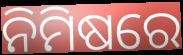
ନିମିଷରେ